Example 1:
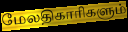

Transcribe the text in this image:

மேலதிகாரிகளும்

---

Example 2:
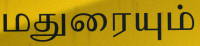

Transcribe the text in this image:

மதுரையும்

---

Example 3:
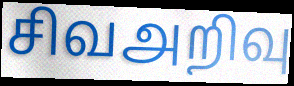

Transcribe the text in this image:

சிவஅறிவு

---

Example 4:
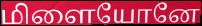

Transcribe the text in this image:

மிளையோனே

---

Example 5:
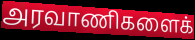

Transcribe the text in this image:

அரவாணிகளைக்